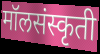
मॉलसंस्कृती